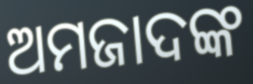
ଅମଜାଦଙ୍କ